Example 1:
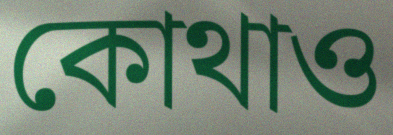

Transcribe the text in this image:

কোথাও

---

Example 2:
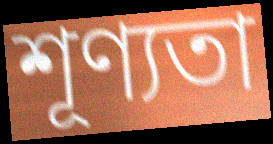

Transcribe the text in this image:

শূণ্যতা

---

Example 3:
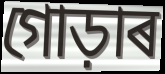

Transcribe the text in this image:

গোড়াৰ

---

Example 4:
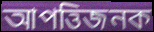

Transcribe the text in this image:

আপত্তিজনক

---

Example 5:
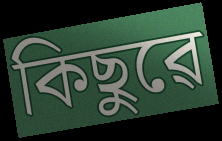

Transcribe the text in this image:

কিছুৱে